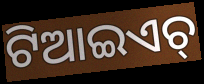
ଟିଆଇଏଚ୍